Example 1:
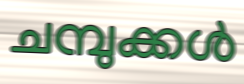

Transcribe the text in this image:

ചമ്പുക്കൾ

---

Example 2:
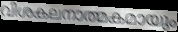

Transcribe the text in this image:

വിശകലനാത്മകമായും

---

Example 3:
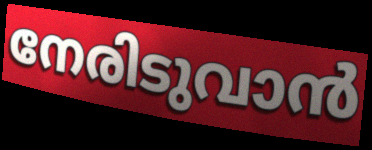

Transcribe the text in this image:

നേരിടുവാൻ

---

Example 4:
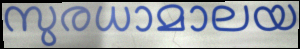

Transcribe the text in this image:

സുരധാമാലയ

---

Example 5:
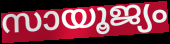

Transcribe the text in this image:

സായൂജ്യം